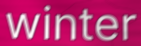
winter